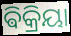
ଵିକ୍ରିୟା